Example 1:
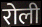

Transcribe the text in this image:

रोली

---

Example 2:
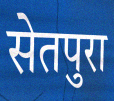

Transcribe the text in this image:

सेतपुरा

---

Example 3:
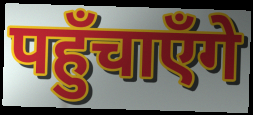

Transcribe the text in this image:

पहुँचाएँगे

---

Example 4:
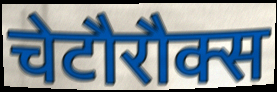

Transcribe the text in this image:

चेटौरौक्स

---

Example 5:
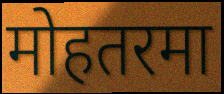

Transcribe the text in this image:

मोहतरमा